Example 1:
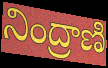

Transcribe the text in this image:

నింద్రాణి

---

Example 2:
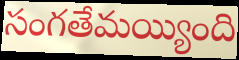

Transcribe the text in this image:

సంగతేమయ్యింది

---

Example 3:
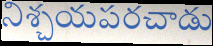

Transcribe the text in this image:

నిశ్చయపరచాడు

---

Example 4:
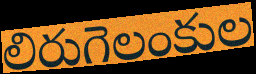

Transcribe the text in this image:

లిరుగెలంకుల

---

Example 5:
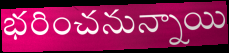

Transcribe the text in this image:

భరించనున్నాయి